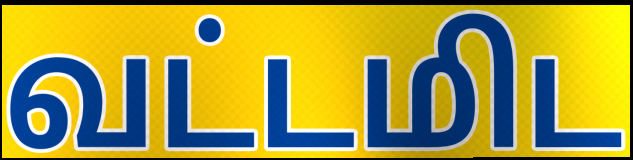
வட்டமிட